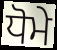
ਧੋਮੇ